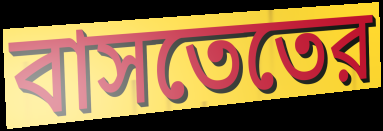
বাসতেতের